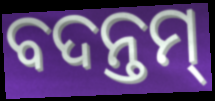
ବଦନ୍ତମ୍